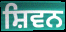
ਸ਼ਿਵਨ